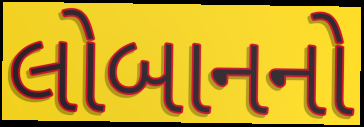
લોબાનનો